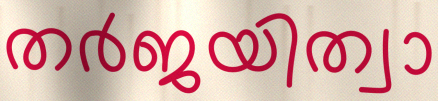
തർജയിത്വാ